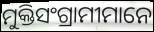
ମୁକ୍ତିସଂଗ୍ରାମୀମାନେ